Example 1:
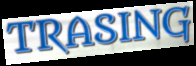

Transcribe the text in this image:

TRASING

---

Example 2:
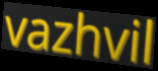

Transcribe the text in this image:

vazhvil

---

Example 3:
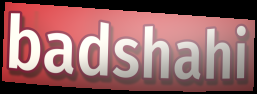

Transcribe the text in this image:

badshahi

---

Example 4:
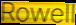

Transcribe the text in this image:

Rowell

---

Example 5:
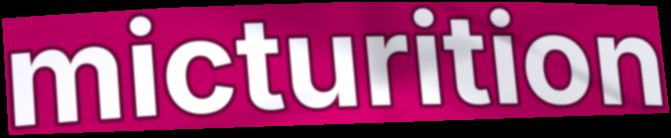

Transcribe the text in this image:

micturition